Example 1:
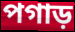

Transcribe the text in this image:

পগাড়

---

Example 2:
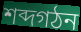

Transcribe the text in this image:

শব্দগঠন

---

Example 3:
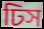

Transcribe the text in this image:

ঢিস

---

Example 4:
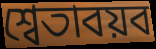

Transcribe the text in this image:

শ্বেতাবয়ব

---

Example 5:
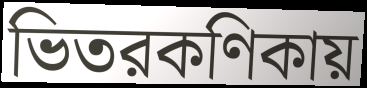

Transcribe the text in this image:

ভিতরকণিকায়